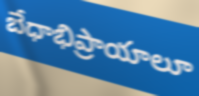
బేధాభిప్రాయాలూ